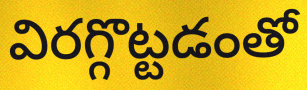
విరగ్గొట్టడంతో